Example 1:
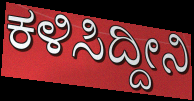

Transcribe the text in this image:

ಕಳಿಸಿದ್ದೀನಿ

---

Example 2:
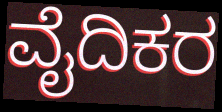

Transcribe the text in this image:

ವೈದಿಕರ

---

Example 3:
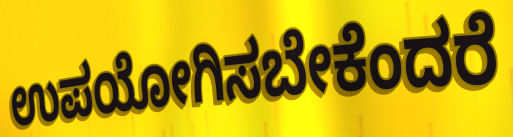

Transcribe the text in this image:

ಉಪಯೋಗಿಸಬೇಕೆಂದರೆ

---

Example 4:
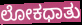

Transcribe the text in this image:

ಲೋಕಧಾತು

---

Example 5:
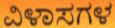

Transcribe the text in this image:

ವಿಳಾಸಗಳ